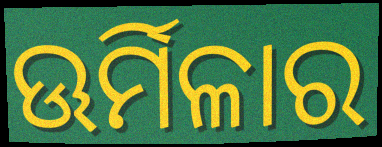
ଊର୍ମିଳାର